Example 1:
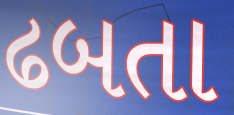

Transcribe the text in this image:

ઢબતા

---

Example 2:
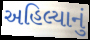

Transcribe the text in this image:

અહિલ્યાનું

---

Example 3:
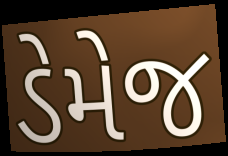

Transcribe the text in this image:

ડેમેજ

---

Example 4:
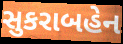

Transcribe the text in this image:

સુકરાબહેન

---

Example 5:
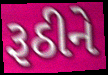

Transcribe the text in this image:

રૂઠીને